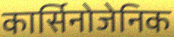
कार्सिनोजेनिक